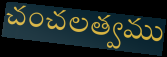
చంచలత్వము